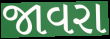
જાવરા